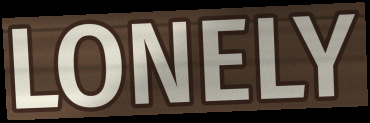
LONELY